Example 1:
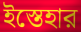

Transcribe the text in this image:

ইস্তেহার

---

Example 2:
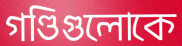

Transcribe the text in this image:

গণ্ডিগুলোকে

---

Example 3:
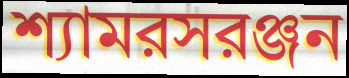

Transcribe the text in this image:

শ্যামরসরঞ্জন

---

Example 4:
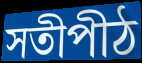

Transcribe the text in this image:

সতীপীঠ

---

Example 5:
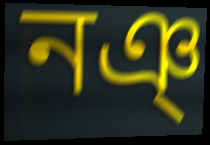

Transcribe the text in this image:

নঞ্